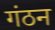
गंठन